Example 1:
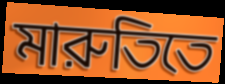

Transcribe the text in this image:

মারুতিতে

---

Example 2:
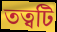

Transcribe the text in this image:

তত্বটি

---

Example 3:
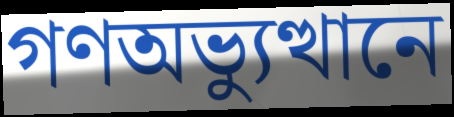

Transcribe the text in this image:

গণঅভ্যুত্থানে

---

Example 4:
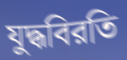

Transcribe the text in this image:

যুদ্ধবিরতি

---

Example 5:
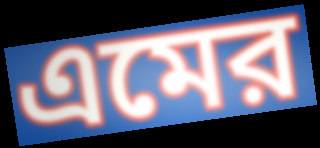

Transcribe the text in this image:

এমের